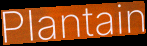
Plantain